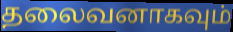
தலைவனாகவும்